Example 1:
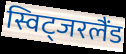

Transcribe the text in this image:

स्विट्जरलैंड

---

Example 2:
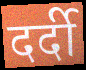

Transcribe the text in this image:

दर्दी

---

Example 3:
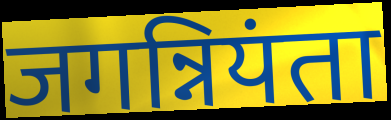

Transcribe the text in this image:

जगन्नियंता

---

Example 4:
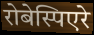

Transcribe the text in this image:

रोबेस्पिएरे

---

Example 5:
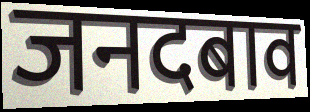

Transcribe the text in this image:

जनदबाव